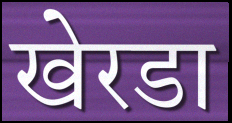
खेरडा